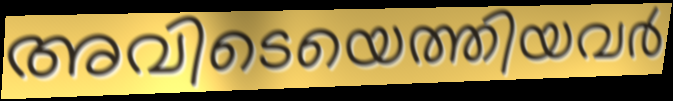
അവിടെയെത്തിയവർ